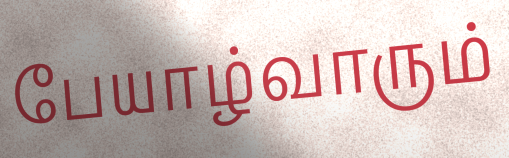
பேயாழ்வாரும்